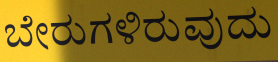
ಬೇರುಗಳಿರುವುದು